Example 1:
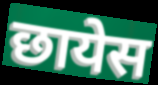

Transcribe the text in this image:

छायेस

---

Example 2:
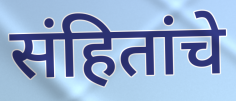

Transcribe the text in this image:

संहितांचे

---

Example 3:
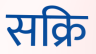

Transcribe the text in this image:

सक्रि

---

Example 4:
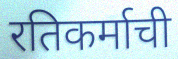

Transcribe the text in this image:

रतिकर्माची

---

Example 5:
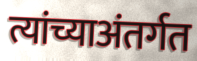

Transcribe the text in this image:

त्यांच्याअंतर्गत